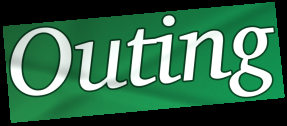
Outing